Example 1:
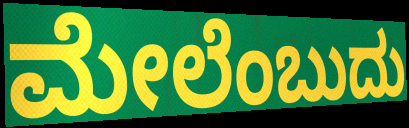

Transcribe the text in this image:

ಮೇಲೆಂಬುದು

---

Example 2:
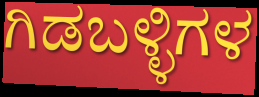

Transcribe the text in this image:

ಗಿಡಬಳ್ಳಿಗಳ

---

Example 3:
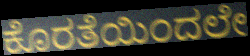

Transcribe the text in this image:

ಕೊರತೆಯಿಂದಲೇ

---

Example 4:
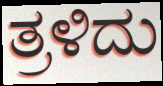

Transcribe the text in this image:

ತ್ರಳಿದು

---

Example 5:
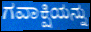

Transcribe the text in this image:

ಗವಾಕ್ಷಿಯನ್ನು